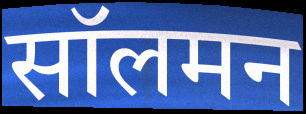
सॉलमन